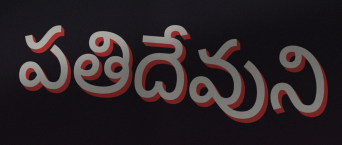
పతిదేవుని